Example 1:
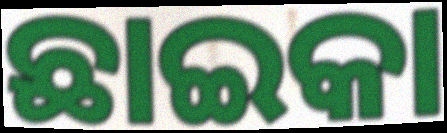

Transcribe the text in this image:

ଛାଇକା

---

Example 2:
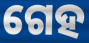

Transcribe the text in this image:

ଗେହ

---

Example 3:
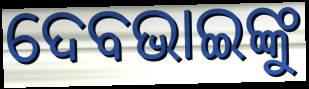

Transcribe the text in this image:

ଦେବଭାଇଙ୍କୁ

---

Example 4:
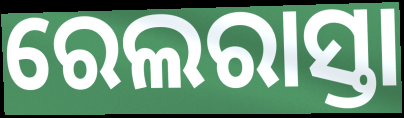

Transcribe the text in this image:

ରେଲରାସ୍ତା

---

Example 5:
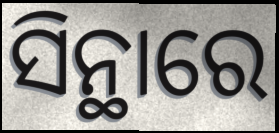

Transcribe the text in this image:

ସିନ୍ଥାରେ